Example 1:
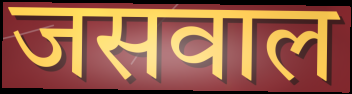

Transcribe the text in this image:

जसवाल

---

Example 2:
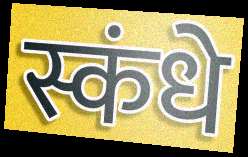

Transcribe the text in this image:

स्कंधे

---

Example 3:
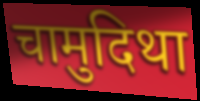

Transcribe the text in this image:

चामुदिथा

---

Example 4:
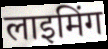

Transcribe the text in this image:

लाइमिंग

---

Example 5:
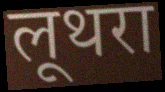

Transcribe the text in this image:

लूथरा